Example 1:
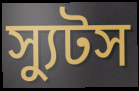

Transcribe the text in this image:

স্যুটস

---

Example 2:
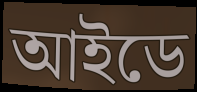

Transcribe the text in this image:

আইডে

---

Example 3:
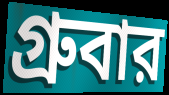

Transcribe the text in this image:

গ্রুবার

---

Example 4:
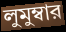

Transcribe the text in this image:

লুমুম্বার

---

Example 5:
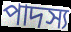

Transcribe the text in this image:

পাদস্য